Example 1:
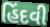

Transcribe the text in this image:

હિંદવી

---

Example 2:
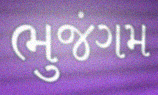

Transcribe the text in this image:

ભુજંગમ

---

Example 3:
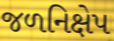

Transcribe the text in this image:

જળનિક્ષેપ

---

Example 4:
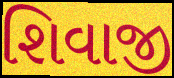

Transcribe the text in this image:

શિવાજી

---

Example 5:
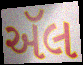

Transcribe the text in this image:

ઍલ